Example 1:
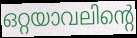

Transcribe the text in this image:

ഒറ്റയാവലിന്റെ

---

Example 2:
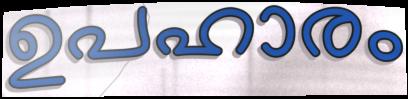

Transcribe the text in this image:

ഉപഹാരം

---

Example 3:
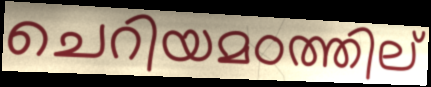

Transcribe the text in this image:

ചെറിയമഠത്തില്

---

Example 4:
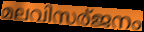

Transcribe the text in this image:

മലവിസര്ജനം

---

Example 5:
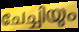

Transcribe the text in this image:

ചേച്ചിയും